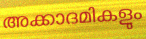
അക്കാദമികളും